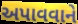
અપાવવાને